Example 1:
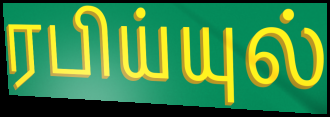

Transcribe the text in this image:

ரபிய்யுல்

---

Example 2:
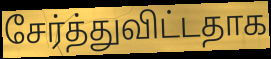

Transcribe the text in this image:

சேர்த்துவிட்டதாக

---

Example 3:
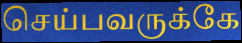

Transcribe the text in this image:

செய்பவருக்கே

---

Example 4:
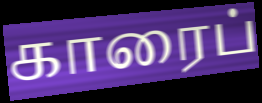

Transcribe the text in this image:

காரைப்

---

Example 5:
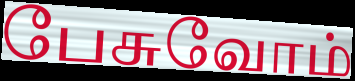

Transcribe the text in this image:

பேசுவோம்